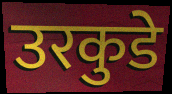
उरकुडे